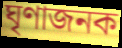
ঘৃণাজনক